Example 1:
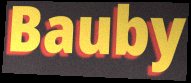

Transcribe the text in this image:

Bauby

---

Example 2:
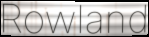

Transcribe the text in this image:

Rowland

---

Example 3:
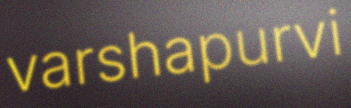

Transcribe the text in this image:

varshapurvi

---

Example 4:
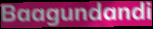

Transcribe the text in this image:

Baagundandi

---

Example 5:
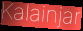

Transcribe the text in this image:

Kalainjar